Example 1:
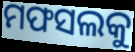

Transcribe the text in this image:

ମଫସଲକୁ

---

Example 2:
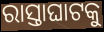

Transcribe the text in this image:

ରାସ୍ତାଘାଟକୁ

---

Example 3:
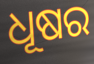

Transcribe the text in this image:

ଧୂଷର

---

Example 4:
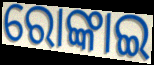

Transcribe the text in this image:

ରୋଙ୍କାଇ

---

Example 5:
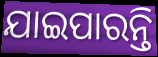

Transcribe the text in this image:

ଯାଇପାରନ୍ତି